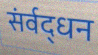
संर्वद्धन